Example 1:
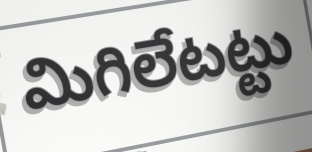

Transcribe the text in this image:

మిగిలేటట్టు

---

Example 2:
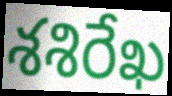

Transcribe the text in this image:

శశిరేఖ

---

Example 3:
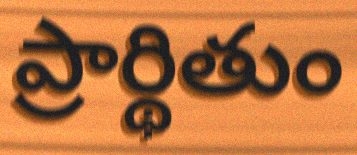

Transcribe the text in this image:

ప్రార్థితుం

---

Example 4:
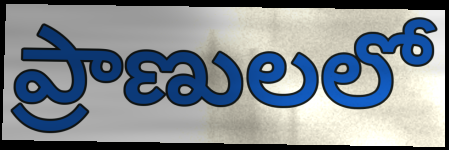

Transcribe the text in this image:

ప్రాణులలో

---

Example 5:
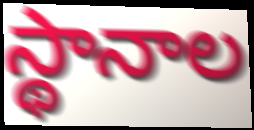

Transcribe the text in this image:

స్థానాల